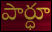
పార్ధూ